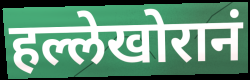
हल्लेखोरानं